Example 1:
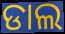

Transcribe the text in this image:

ଡାଲ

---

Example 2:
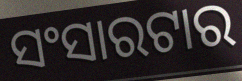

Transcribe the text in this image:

ସଂସାରଟାର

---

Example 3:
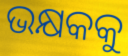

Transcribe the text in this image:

ଭକ୍ଷକକୁ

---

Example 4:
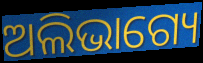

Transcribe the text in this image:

ଅଲିଭାଗ୍ୟେ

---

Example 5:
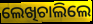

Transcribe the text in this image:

ଲେଖିଚାଲିଲେ